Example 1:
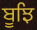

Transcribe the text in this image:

ਬੂਝਿ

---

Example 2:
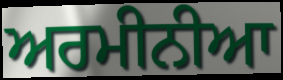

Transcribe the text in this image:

ਅਰਮੀਨੀਆ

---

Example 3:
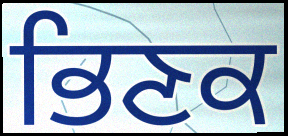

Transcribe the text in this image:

ਭਿਣਕ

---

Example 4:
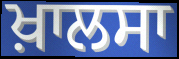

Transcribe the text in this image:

ਖ਼ਾਲਸਾ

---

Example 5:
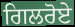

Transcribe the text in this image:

ਗਿਲਰੋਏ